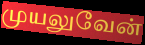
முயலுவேன்